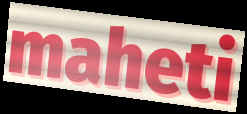
maheti